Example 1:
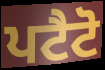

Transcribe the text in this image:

ਪਟੈਟੋ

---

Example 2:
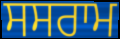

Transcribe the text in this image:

ਸਸਰਾਮ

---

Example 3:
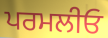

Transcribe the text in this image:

ਪਰਮਲੀਓ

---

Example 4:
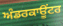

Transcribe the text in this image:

ਅੰਡਰਕਾਊਂਟਰ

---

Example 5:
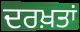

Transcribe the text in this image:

ਦਰਖ਼ਤਾਂ